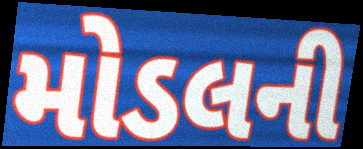
મોડલની